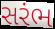
સરંભ